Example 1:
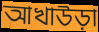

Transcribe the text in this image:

আখাউড়া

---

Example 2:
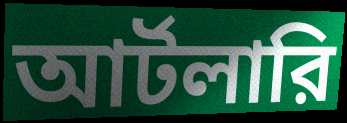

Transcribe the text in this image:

আর্টলারি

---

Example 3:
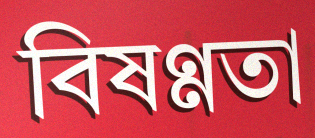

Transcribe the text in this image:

বিষণ্ণতা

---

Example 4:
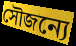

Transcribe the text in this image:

সৌজন্যে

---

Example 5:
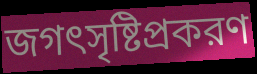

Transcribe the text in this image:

জগৎসৃষ্টিপ্রকরণ